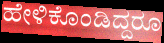
ಹೇಳಿಕೊಂಡಿದ್ದರೂ